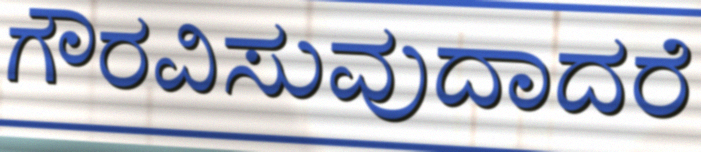
ಗೌರವಿಸುವುದಾದರೆ